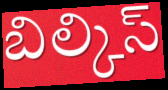
బిల్కిస్